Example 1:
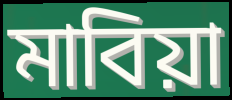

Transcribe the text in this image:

মাবিয়া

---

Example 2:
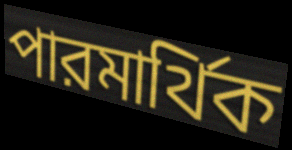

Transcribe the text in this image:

পারমার্থিক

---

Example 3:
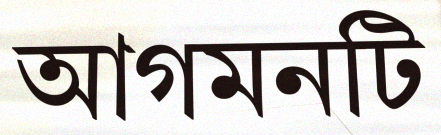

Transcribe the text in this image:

আগমনটি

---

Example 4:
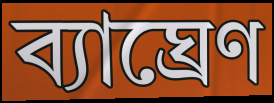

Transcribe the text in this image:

ব্যাঘ্রেণ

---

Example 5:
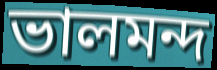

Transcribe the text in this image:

ভালমন্দ